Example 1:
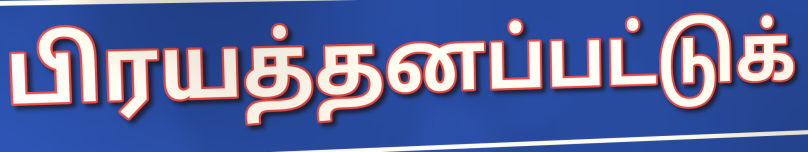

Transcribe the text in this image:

பிரயத்தனப்பட்டுக்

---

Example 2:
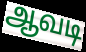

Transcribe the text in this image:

ஆவடி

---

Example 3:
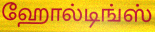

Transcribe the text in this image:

ஹோல்டிங்ஸ்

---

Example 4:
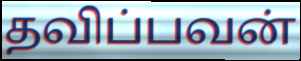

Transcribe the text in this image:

தவிப்பவன்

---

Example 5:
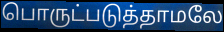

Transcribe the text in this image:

பொருட்படுத்தாமலே